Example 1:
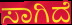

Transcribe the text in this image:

ಸಾಗಿದೆ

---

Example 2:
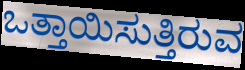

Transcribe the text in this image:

ಒತ್ತಾಯಿಸುತ್ತಿರುವ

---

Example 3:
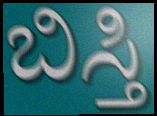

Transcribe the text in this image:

ಬಿಸ್ತಿ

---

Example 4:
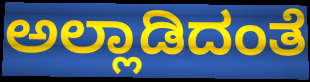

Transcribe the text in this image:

ಅಲ್ಲಾಡಿದಂತೆ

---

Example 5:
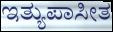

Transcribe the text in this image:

ಇತ್ಯುಪಾಸೀತ